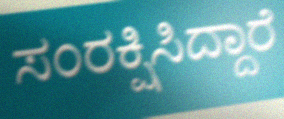
ಸಂರಕ್ಷಿಸಿದ್ದಾರೆ